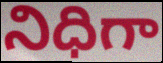
నిధిగా